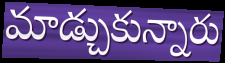
మాడ్చుకున్నారు